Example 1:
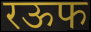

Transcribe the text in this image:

रऊफ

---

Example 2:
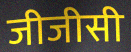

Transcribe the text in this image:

जीजीसी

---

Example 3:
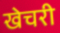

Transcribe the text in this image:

खेचरी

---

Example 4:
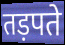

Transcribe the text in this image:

तड़पते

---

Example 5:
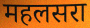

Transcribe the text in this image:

महलसरा